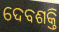
ଦେବଶକ୍ତି